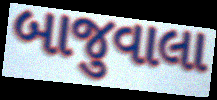
બાજુવાલા